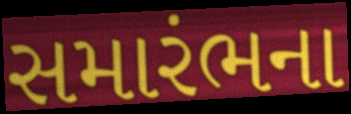
સમારંભના